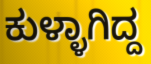
ಕುಳ್ಳಾಗಿದ್ದ